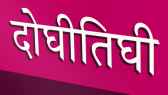
दोघीतिघी